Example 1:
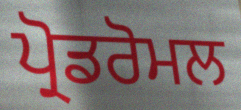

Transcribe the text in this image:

ਪ੍ਰੋਡਰੋਮਲ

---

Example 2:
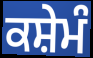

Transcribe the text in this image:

ਕਸ਼ੇਮੰ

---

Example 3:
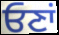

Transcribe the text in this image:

ਓਣਾਂ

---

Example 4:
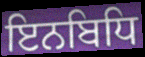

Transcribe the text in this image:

ਇਨਬਿਧਿ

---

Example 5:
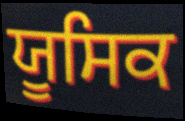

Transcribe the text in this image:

ਯੂਸਿਕ